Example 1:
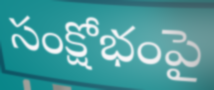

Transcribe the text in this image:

సంక్షోభంపై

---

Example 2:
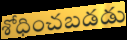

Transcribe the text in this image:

శోధించబడడు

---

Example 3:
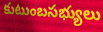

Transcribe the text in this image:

కుటుంబసభ్యులు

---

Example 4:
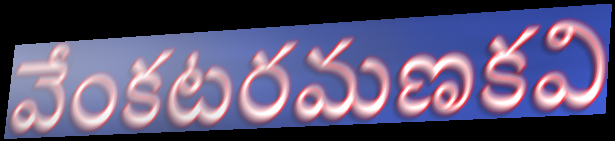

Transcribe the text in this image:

వేంకటరమణకవి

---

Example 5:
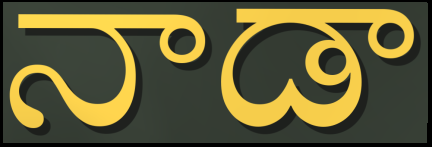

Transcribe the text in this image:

నాడా